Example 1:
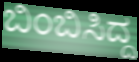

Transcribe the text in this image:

ಬಿಂಬಿಸಿದ್ದ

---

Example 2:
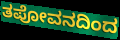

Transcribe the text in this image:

ತಪೋವನದಿಂದ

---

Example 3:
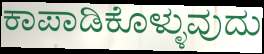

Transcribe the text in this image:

ಕಾಪಾಡಿಕೊಳ್ಳುವುದು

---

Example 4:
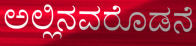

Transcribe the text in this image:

ಅಲ್ಲಿನವರೊಡನೆ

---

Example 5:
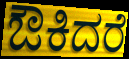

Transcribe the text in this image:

ಔಕಿದರೆ